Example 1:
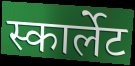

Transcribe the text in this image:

स्कार्लेट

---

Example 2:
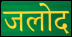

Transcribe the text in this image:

जलोद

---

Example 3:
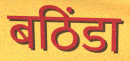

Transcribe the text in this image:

बठिंडा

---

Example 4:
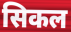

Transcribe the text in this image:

सिकल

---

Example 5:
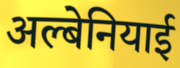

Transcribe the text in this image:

अल्बेनियाई